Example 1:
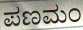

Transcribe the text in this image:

ಪಣಮಂ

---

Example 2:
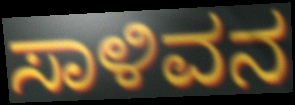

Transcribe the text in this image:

ಸಾಳಿವನ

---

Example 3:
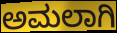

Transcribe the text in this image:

ಅಮಲಾಗಿ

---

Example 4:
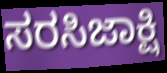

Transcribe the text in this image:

ಸರಸಿಜಾಕ್ಷಿ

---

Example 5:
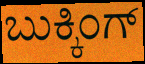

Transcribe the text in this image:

ಬುಕ್ಕಿಂಗ್